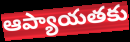
ఆప్యాయతకు